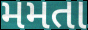
મમતા